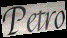
Petro